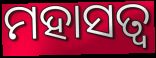
ମହାସତ୍ୱ